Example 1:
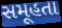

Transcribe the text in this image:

સમૂહતા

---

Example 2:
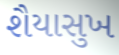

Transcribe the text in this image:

શૈયાસુખ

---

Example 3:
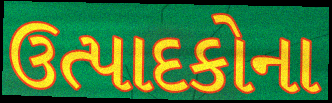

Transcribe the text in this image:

ઉત્પાદકોના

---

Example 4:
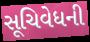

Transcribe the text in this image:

સૂચિવેધની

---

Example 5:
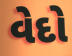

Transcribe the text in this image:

વેદો